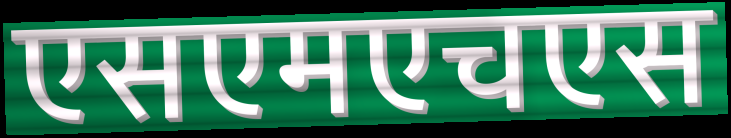
एसएमएचएस